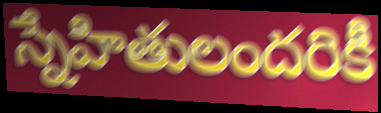
స్నేహితులందరికీ